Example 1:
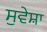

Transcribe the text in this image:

ਸੁਵੇਸ਼ਾ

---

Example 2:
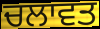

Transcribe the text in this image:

ਚਲਾਵਤ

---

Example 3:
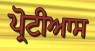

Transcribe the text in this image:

ਪ੍ਰੋਟੀਆਸ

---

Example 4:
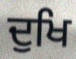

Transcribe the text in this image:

ਦੁਖਿ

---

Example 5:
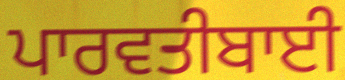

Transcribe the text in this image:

ਪਾਰਵਤੀਬਾਈ